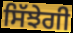
ਸਿੱਝੇਗੀ